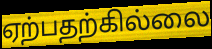
ஏற்பதற்கில்லை